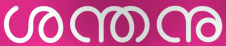
ശന്തനു